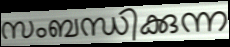
സംബന്ധിക്കുന്ന